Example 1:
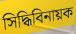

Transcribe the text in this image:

সিদ্ধিবিনায়ক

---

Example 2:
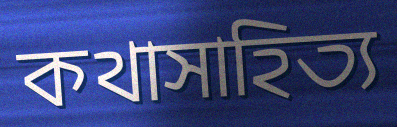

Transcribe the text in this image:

কথাসাহিত্য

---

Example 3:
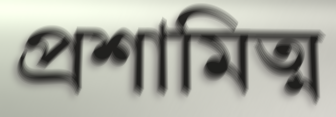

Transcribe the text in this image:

প্রশামিত্ম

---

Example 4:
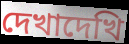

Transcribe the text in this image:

দেখাদেখি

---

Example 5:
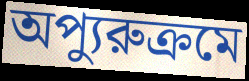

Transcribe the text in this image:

অপ্যুরুক্রমে